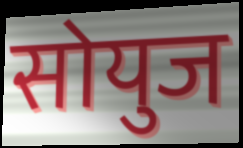
सोयुज